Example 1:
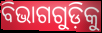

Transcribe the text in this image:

ବିଭାଗଗୁଡ଼ିକୁ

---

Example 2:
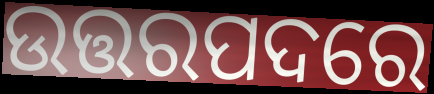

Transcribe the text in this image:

ଉତ୍ତରପଦରେ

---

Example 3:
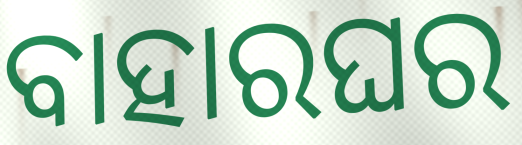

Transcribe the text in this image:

ବାହାରଘର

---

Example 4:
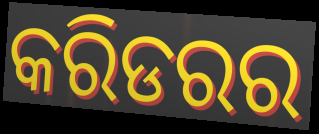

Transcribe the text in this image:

କରିଡରର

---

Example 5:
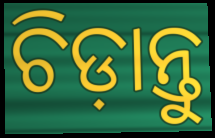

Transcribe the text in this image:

ଚିଡ଼ାନ୍ତୁ